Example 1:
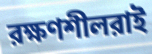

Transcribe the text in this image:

রক্ষণশীলরাই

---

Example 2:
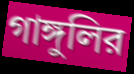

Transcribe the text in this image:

গাঙ্গুলির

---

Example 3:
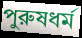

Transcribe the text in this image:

পুরুষধর্ম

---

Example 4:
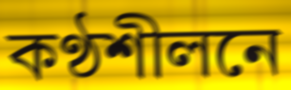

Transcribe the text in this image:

কণ্ঠশীলনে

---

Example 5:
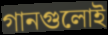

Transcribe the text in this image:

গানগুলোই